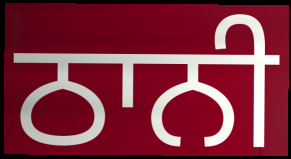
ਠਾਨੀ